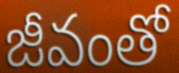
జీవంతో